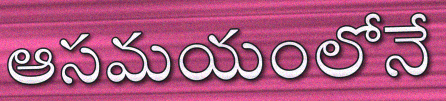
ఆసమయంలోనే